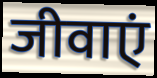
जीवाएं